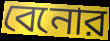
বেনোর